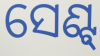
ସେଣ୍ଟ୍